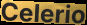
Celerio